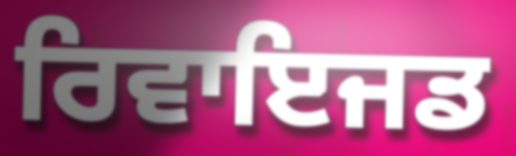
ਰਿਵਾਇਜਡ